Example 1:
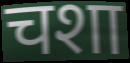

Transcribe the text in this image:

चशा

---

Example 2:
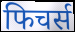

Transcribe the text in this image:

फिचर्स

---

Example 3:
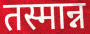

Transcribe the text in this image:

तस्मान्न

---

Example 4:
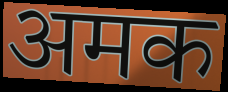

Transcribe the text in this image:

अमक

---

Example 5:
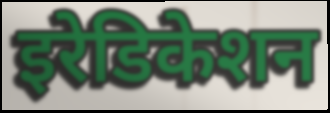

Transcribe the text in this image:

इरेडिकेशन